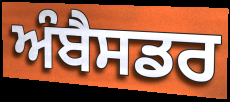
ਅੰਬੈਸਡਰ